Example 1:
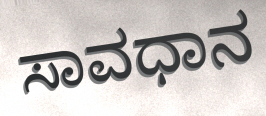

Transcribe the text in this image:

ಸಾವಧಾನ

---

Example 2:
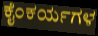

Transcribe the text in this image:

ಕೈಂಕರ್ಯಗಳ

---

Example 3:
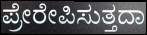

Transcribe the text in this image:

ಪ್ರೇರೇಪಿಸುತ್ತದಾ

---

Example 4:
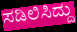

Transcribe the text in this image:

ಸಡಿಲಿಸಿದ್ದು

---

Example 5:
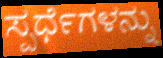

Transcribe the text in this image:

ಸ್ಪರ್ಧೆಗಳನ್ನು